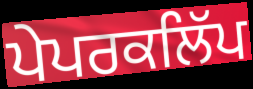
ਪੇਪਰਕਲਿੱਪ